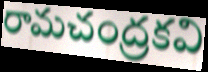
రామచంద్రకవి